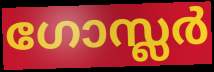
ഗോസ്ലർ